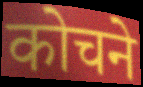
कोचने